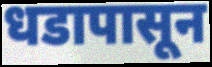
धडापासून